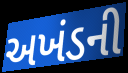
અખંડની